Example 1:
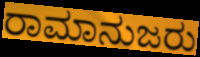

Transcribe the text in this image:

ರಾಮಾನುಜರು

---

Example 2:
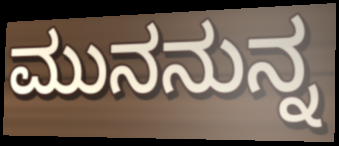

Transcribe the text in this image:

ಮುನನುನ್ನ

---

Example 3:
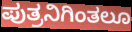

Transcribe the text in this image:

ಪುತ್ರನಿಗಿಂತಲೂ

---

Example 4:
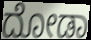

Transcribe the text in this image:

ದೋಡಾ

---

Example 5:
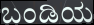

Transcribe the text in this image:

ಬಂಡಿಯ